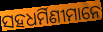
ସହଧର୍ମିଣୀମାନେ